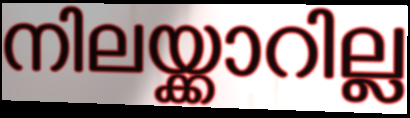
നിലയ്ക്കാറില്ല